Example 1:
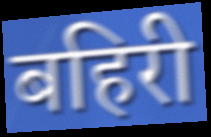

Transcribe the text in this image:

बहिरी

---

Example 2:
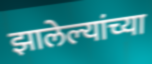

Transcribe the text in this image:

झालेल्यांच्या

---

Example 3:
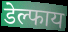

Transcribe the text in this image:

डेल्फाय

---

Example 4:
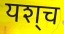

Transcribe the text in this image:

यश्च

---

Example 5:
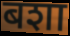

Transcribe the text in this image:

बशा